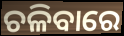
ଚଳିବାରେ